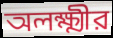
অলক্ষ্মীর